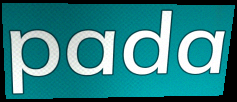
pada